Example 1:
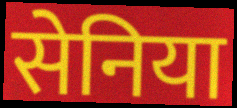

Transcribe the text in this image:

सेनिया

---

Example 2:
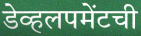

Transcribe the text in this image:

डेव्हलपमेंटची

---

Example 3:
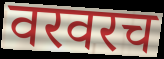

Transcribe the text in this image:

वरवरच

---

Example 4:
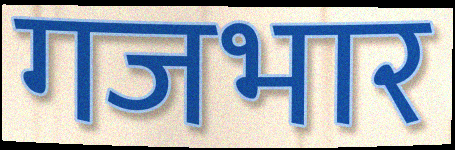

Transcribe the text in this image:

गजभार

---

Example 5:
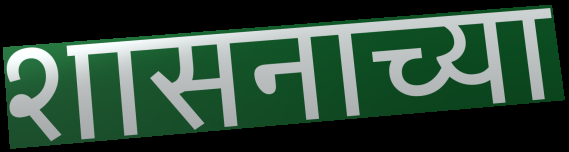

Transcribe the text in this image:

शासनाच्या